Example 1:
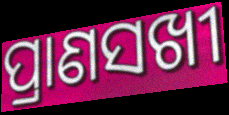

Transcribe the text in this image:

ପ୍ରାଣସଖୀ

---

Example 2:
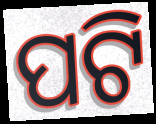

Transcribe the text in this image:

ପଟି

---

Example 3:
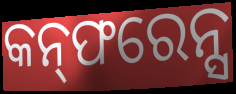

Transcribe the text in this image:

କନ୍‌ଫରେନ୍ସ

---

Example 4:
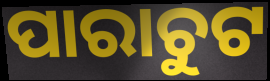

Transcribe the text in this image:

ପାରାଚୁଟ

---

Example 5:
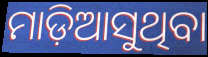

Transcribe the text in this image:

ମାଡ଼ିଆସୁଥିବା